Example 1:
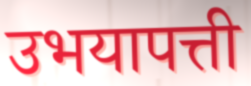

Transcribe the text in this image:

उभयापत्ती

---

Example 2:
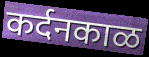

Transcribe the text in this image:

कर्दनकाळ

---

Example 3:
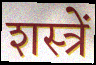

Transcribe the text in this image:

शस्त्रें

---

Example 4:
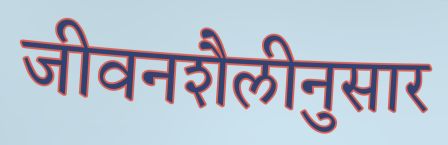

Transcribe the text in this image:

जीवनशैलीनुसार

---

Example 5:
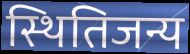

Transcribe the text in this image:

स्थितिजन्य